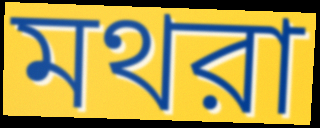
মথরা